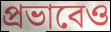
প্রভাবেও